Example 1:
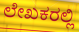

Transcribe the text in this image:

ಲೇಖಕರಲ್ಲಿ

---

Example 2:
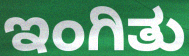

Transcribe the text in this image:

ಇಂಗಿತು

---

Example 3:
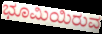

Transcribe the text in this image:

ಭೂಮಿಯಿರುವ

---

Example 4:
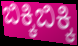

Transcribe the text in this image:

ಬಿಕ್ಕಿಬಿಕ್ಕಿ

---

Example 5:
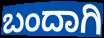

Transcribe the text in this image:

ಬಂದಾಗಿ